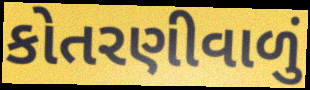
કોતરણીવાળું